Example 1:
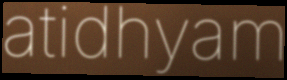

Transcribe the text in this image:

atidhyam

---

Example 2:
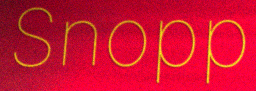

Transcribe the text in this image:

Snopp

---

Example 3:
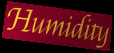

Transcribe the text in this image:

Humidity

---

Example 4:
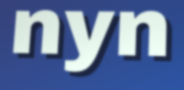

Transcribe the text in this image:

nyn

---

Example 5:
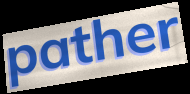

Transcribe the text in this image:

pather